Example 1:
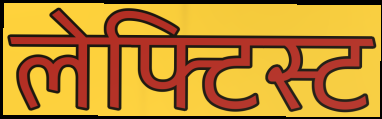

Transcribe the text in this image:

लेफ्टिस्ट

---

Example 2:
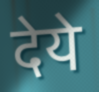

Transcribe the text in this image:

देये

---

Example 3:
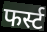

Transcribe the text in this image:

फर्स्ट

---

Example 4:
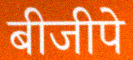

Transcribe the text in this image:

बीजीपे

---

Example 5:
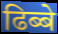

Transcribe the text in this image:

ढिब्बे